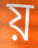
য়